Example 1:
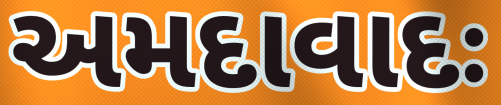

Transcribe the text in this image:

અમદાવાદઃ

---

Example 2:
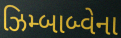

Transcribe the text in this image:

ઝિમ્બાબ્વેના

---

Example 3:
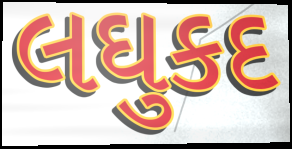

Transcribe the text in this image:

લઘુકદ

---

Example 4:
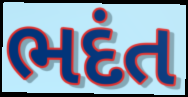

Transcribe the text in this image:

ભદંત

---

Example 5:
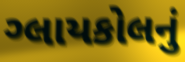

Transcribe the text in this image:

ગ્લાયકોલનું